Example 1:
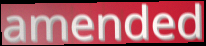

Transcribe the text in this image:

amended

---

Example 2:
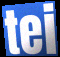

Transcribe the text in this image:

tei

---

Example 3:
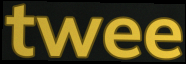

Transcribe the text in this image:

twee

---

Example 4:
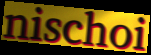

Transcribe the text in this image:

nischoi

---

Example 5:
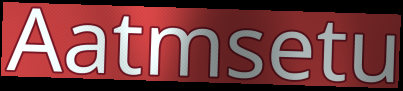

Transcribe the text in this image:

Aatmsetu